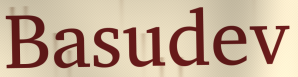
Basudev